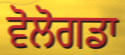
ਵੋਲੋਗਡਾ